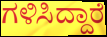
ಗಳಿಸಿದ್ದಾರೆ